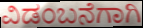
ವಿಡಂಬನೆಗಾಗಿ